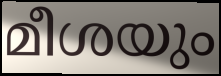
മീശയും